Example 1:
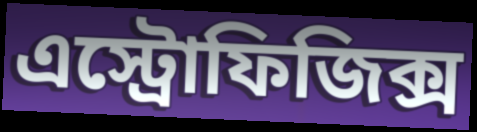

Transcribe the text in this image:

এস্ট্রোফিজিক্স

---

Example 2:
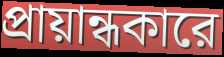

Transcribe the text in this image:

প্রায়ান্ধকারে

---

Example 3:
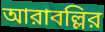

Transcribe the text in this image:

আরাবল্লির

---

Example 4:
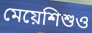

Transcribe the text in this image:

মেয়েশিশুও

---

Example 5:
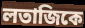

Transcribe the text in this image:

লতাজিকে